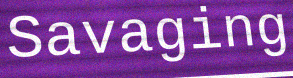
Savaging